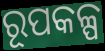
ରୂପକଳ୍ପ